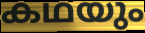
കഥയും